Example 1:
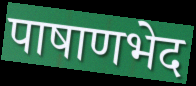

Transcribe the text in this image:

पाषाणभेद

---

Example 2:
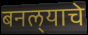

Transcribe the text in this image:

बनल्याचे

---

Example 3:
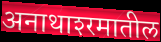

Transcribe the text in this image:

अनाथाश्रमातील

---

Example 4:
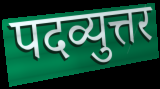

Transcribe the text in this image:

पदव्युत्तर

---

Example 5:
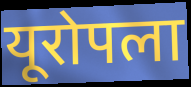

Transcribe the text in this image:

यूरोपला